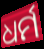
ଧର୍ମ